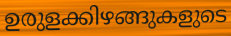
ഉരുളക്കിഴങ്ങുകളുടെ